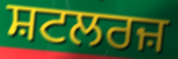
ਸ਼ਟਲਰਜ਼